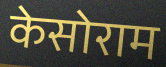
केसोराम